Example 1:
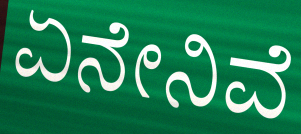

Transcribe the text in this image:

ಏನೇನಿವೆ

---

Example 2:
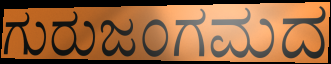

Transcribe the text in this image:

ಗುರುಜಂಗಮದ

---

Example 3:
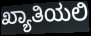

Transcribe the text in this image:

ಖ್ಯಾತಿಯಲಿ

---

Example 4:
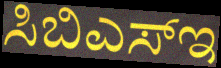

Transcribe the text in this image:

ಸಿಬಿಎಸ್ಇ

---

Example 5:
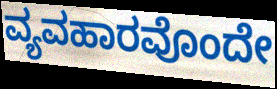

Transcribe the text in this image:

ವ್ಯವಹಾರವೊಂದೇ